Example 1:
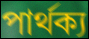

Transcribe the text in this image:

পাৰ্থক্য়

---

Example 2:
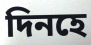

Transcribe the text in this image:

দিনহে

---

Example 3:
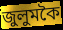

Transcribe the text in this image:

জুলুমকৈ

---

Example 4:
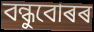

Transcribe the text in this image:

বন্ধুবোৰৰ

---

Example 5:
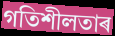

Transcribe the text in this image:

গতিশীলতাৰ